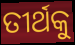
ତୀର୍ଥକୁ